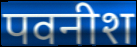
पवनीश